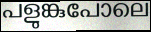
പളുങ്കുപോലെ